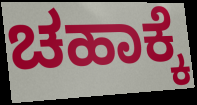
ಚಹಾಕ್ಕೆ